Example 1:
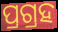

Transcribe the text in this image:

ପ୍ରଗ୍ରହ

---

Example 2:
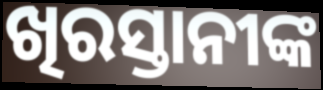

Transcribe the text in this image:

ଖିରସ୍ତାନୀଙ୍କ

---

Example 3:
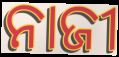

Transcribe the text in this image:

ନାଜୀ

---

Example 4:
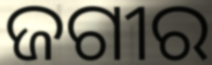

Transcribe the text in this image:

ଜଗୀର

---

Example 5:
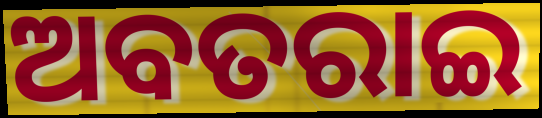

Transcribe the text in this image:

ଅବତରାଇ